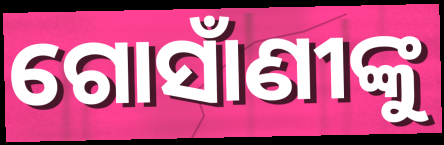
ଗୋସାଁଣୀଙ୍କୁ